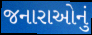
જનારાઓનું